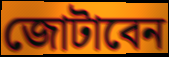
জোটাবেন